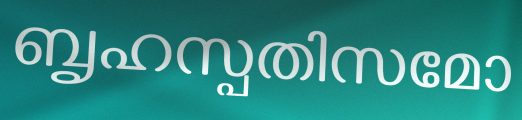
ബൃഹസ്പതിസമോ